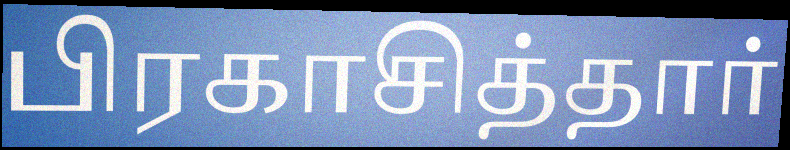
பிரகாசித்தார்